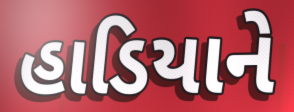
હાડિયાને